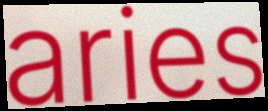
aries